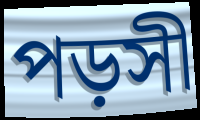
পড়সী